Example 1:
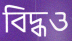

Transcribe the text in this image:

বিদ্ধও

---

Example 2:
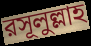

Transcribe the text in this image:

রসূলুল্লাহ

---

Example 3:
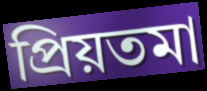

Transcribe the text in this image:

প্রিয়তমা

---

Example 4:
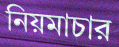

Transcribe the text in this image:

নিয়মাচার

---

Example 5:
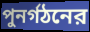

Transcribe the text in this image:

পুনর্গঠনের